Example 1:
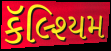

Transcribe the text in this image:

કૅલ્શ્યિમ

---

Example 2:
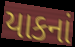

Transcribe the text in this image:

યાકનાં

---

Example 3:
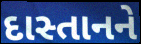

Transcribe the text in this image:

દાસ્તાનને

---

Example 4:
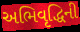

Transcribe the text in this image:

અભિવૃદ્ધિની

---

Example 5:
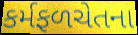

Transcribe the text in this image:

કર્મફળચેતના